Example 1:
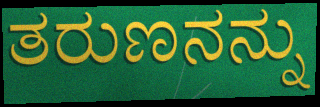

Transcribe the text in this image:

ತರುಣನನ್ನು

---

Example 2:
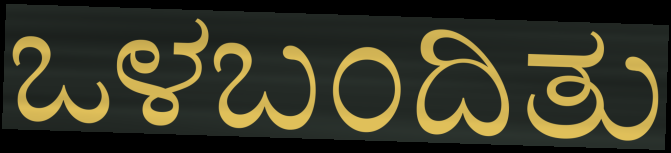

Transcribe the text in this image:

ಒಳಬಂದಿತು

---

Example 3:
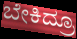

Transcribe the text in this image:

ಬೇಕಿದ್ರೂ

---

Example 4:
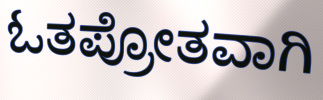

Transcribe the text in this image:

ಓತಪ್ರೋತವಾಗಿ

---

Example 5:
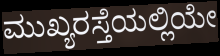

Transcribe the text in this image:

ಮುಖ್ಯರಸ್ತೆಯಲ್ಲಿಯೇ